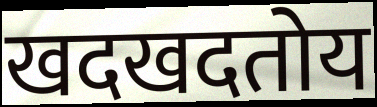
खदखदतोय